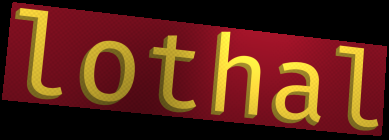
lothal